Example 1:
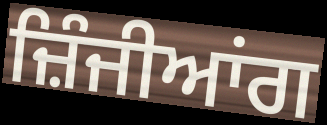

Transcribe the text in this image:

ਜ਼ਿੰਜੀਆਂਗ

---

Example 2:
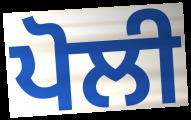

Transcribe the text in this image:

ਪੋਲੀ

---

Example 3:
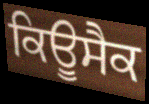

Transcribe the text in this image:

ਕਿਊਸੈਕ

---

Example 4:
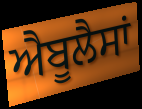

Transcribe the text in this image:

ਐਬੂਲੈਸਾਂ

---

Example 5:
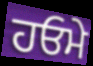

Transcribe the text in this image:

ਹਓਮੇ